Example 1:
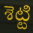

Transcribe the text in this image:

శెట్టి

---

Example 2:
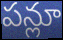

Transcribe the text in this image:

పన్లూ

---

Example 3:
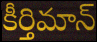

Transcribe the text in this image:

కీర్తిమాన్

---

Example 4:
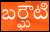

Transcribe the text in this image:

బర్ఘౌటి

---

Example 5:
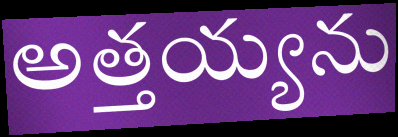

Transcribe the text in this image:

అత్తయ్యను